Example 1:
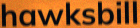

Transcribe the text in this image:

hawksbill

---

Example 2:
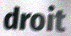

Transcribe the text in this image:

droit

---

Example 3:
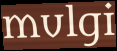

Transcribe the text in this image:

mulgi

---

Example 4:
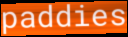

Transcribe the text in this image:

paddies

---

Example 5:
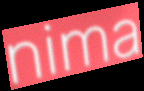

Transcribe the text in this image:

nima